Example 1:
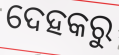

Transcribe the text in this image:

ଦେହକରୁ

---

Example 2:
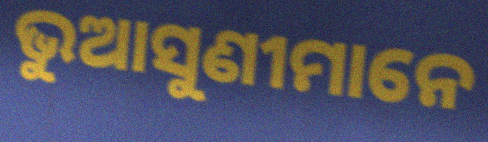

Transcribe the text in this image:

ଭୁଆସୁଣୀମାନେ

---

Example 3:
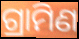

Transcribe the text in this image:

ଗ୍ରାମିଣ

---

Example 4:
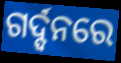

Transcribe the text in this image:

ଗର୍ଦ୍ଦନରେ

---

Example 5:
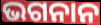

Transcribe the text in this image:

ଭଗନାନ